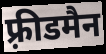
फ़्रीडमैन